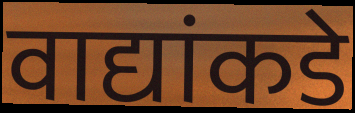
वाद्यांकडे